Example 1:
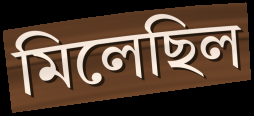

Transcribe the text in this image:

মিলেছিল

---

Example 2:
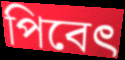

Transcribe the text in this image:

পিবেৎ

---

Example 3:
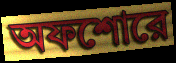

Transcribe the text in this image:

অফশোরে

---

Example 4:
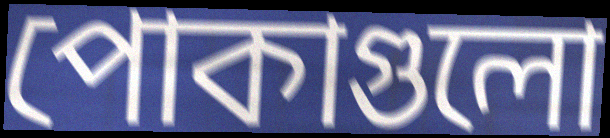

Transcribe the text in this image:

পোকাগুলো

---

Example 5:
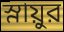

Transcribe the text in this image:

স্নায়ুর